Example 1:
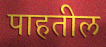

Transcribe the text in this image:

पाहतील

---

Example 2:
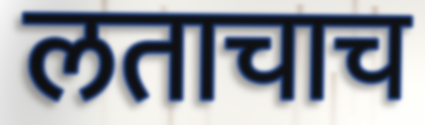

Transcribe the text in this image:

लताचाच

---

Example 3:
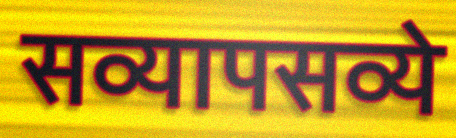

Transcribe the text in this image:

सव्यापसव्ये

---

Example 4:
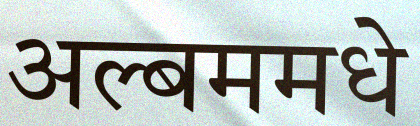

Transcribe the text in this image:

अल्बममधे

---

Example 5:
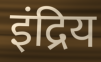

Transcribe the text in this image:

इंद्रिय